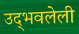
उद्‌भवलेली